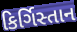
કિર્ગિસ્તાન